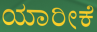
ಯಾರೀಕೆ